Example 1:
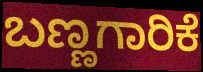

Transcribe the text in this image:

ಬಣ್ಣಗಾರಿಕೆ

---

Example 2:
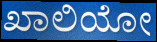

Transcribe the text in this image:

ಖಾಲಿಯೋ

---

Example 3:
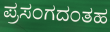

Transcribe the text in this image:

ಪ್ರಸಂಗದಂತಹ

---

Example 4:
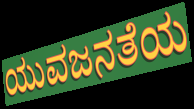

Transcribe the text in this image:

ಯುವಜನತೆಯ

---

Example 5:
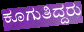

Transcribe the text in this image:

ಕೂಗುತಿದ್ದರು